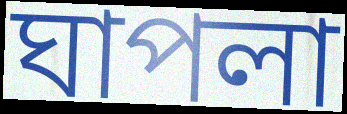
ঘাপলা